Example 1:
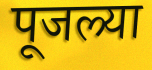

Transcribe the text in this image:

पूजल्या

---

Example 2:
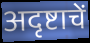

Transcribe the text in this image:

अदृष्टाचें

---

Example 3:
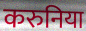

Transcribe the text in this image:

करुनिया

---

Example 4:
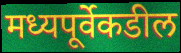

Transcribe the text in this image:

मध्यपूर्वेकडील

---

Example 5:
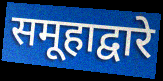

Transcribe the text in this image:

समूहाद्वारे